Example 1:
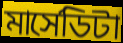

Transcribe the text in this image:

মার্সেডিটা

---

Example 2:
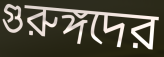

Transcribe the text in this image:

গুরুঙ্গদের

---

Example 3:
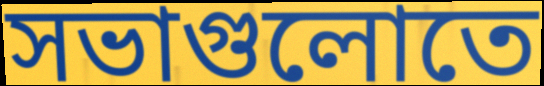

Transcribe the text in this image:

সভাগুলোতে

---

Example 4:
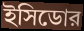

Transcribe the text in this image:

ইসিডোর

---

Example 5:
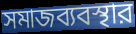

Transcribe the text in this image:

সমাজব্যবস্থার